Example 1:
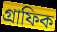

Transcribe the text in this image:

গ্ৰাফিক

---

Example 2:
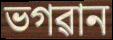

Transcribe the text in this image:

ভগৱান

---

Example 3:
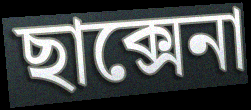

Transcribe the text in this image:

ছাক্সেনা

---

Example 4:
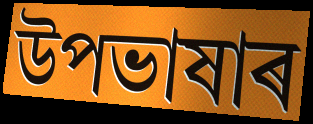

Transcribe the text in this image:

উপভাষাৰ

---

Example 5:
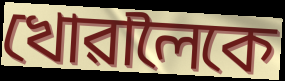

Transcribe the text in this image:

খোৱালৈকে